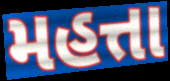
મહત્તા